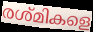
രശ്മികളെ